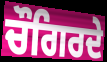
ਚੌਗਿਰਦੇ